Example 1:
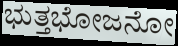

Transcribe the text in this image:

ಭುತ್ತಭೋಜನೋ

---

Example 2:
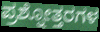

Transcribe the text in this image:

ಪ್ರಶ್ನೋತ್ತರಗಳ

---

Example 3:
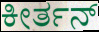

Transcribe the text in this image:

ಕೀರ್ತನ್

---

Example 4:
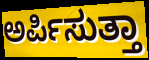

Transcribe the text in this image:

ಅರ್ಪಿಸುತ್ತಾ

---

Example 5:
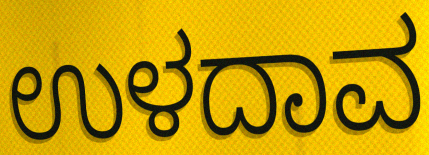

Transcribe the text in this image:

ಉಳದಾವ